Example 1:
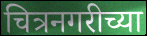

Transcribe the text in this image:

चित्रनगरीच्या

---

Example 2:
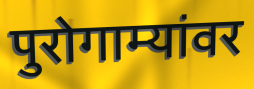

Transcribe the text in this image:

पुरोगाम्यांवर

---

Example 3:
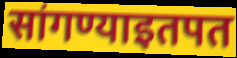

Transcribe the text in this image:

सांगण्याइतपत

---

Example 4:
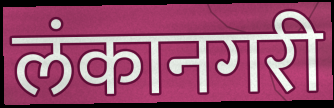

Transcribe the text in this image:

लंकानगरी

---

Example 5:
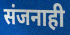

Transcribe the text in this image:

संजनाही